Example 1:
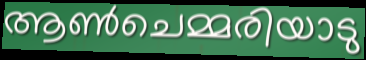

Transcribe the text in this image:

ആൺചെമ്മരിയാടു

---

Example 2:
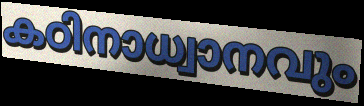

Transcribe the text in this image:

കഠിനാധ്വാനവും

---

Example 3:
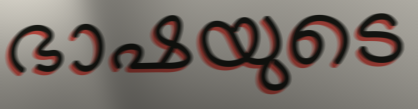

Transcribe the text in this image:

ഭാഷയുടെ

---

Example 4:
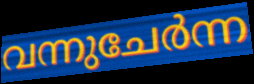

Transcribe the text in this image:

വന്നുചേർന്ന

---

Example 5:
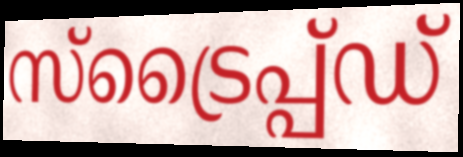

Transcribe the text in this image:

സ്ട്രൈപ്പ്ഡ്